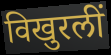
विखुरलीं